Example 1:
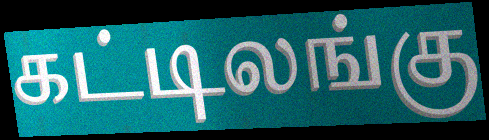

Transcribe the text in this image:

கட்டிலங்கு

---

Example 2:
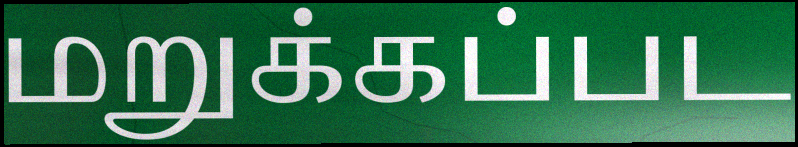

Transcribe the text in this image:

மறுக்கப்பட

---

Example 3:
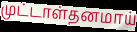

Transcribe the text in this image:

முட்டாள்தனமாய்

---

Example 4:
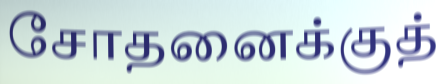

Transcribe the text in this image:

சோதனைக்குத்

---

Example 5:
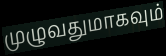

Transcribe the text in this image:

முழுவதுமாகவும்